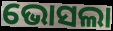
ଭୋସଲା